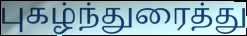
புகழ்ந்துரைத்து